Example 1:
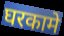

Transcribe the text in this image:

घरकामे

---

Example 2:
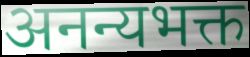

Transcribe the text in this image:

अनन्यभक्त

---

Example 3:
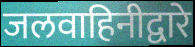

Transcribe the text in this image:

जलवाहिनीद्वारे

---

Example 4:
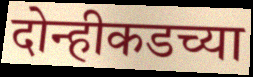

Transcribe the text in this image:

दोन्हीकडच्या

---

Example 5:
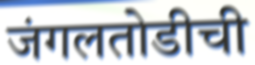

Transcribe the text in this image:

जंगलतोडीची